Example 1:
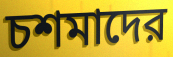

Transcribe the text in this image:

চশমাদের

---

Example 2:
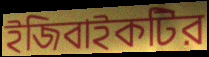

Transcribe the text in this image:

ইজিবাইকটির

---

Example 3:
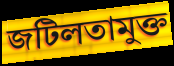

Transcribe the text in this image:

জটিলতামুক্ত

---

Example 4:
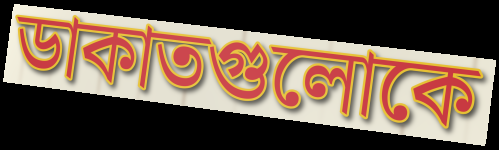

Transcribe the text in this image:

ডাকাতগুলোকে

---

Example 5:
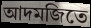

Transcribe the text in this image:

আদমজিতে